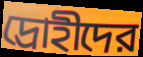
দ্রোহীদের